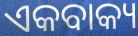
ଏକବାକ୍ୟ